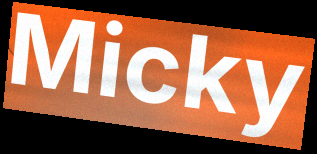
Micky